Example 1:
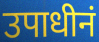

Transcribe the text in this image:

उपाधीनं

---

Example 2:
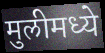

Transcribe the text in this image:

मुलीमध्ये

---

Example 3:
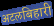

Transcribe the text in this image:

अटलबिहारी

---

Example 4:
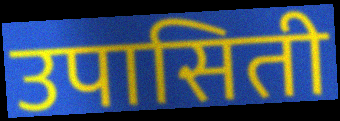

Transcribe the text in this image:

उपासिती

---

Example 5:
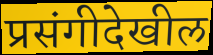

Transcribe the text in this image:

प्रसंगीदेखील